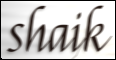
shaik